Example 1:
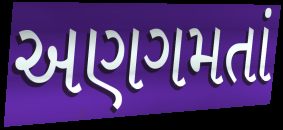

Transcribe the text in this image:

અણગમતાં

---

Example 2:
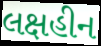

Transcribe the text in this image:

લક્ષહીન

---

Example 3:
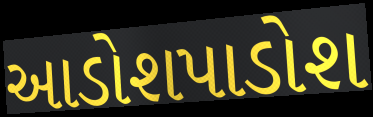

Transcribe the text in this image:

આડોશપાડોશ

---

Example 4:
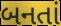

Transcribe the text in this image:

બનતાં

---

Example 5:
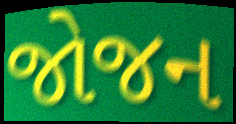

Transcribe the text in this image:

જોજન